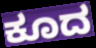
ಕೂದ